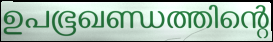
ഉപഭൂഖണ്ഡത്തിന്റെ